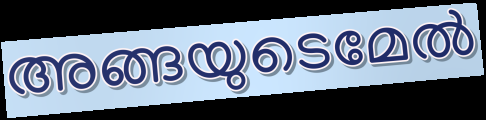
അങ്ങയുടെമേൽ